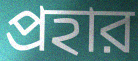
প্রহার